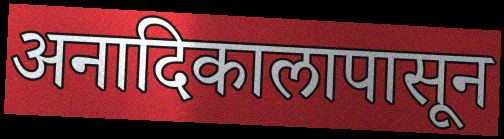
अनादिकालापासून